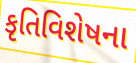
કૃતિવિશેષના